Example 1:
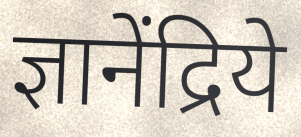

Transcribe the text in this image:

ज्ञानेंद्रिये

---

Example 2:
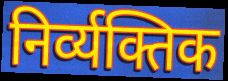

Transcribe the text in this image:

निर्व्यक्तिक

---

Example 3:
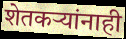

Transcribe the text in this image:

शेतकऱ्यांनाही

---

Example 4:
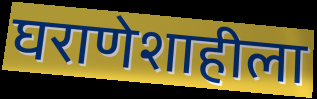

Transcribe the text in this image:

घराणेशाहीला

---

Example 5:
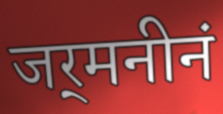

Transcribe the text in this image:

जर्मनीनं